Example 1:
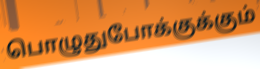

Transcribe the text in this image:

பொழுதுபோக்குக்கும்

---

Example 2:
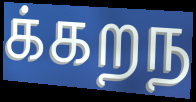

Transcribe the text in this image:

க்கறந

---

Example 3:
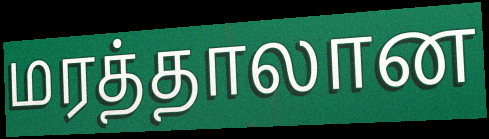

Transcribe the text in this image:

மரத்தாலான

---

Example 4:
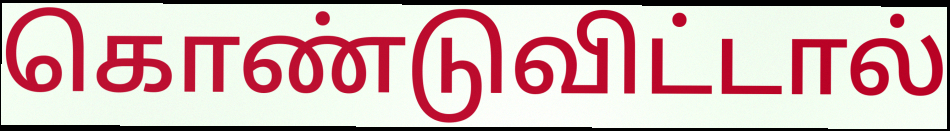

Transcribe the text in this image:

கொண்டுவிட்டால்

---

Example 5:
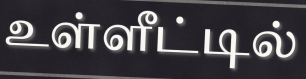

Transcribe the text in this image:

உள்ளீட்டில்